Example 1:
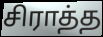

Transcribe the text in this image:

சிராத்த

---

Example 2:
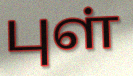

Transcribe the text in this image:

புள்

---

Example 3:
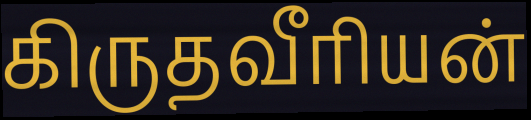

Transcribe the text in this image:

கிருதவீரியன்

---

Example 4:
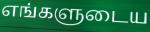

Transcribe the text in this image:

எங்களுடைய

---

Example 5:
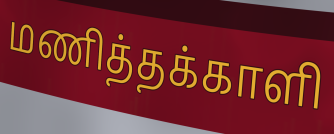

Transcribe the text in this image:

மணித்தக்காளி